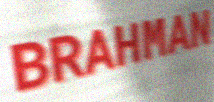
BRAHMAN